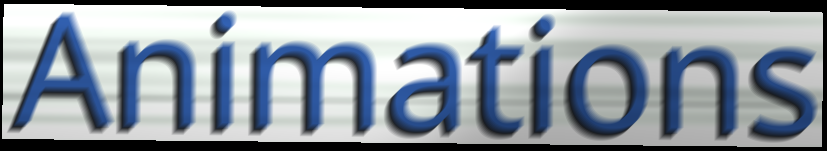
Animations